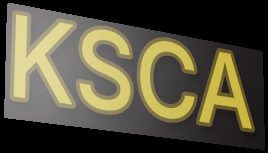
KSCA